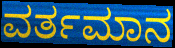
ವರ್ತಮಾನ